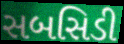
સબસિડી